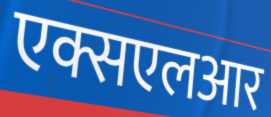
एक्सएलआर